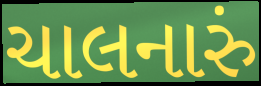
ચાલનારું